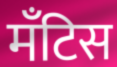
मँटिस